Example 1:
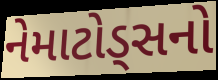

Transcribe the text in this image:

નેમાટોડ્સનો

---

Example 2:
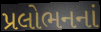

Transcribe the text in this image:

પ્રલોભનનાં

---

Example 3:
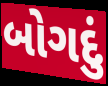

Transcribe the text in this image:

બોગદું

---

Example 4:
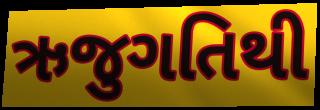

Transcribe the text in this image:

ઋજુગતિથી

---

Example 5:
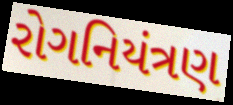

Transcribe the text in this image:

રોગનિયંત્રણ